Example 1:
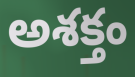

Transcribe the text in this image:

అశక్తం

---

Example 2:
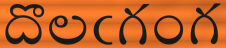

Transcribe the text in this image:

దొలఁగంగ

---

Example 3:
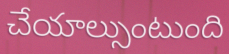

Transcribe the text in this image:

చేయాల్సుంటుంది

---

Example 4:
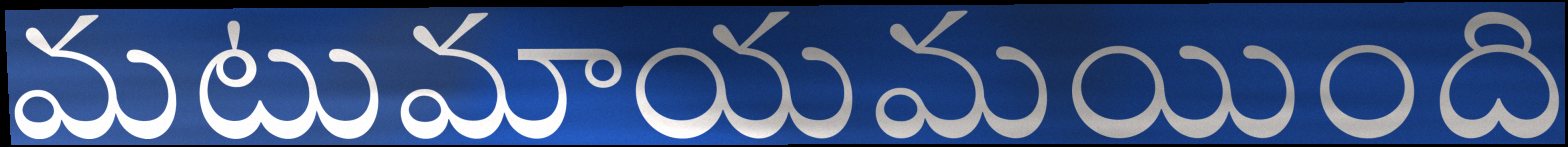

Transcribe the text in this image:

మటుమాయమయింది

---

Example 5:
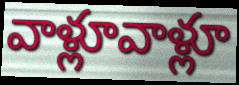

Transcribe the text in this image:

వాళ్లూవాళ్లూ